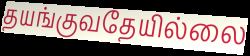
தயங்குவதேயில்லை